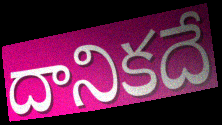
దానికదే